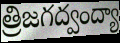
త్రిజగద్వంద్యా